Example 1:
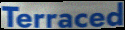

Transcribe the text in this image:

Terraced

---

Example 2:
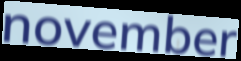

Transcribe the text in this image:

november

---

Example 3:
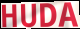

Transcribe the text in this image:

HUDA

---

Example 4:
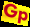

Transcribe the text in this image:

Gp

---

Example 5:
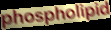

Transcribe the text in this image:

phospholipid